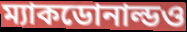
ম্যাকডোনাল্ডও